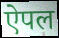
ऐपल